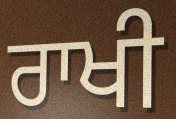
ਰਾਖੀ